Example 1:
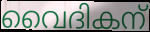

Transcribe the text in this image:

വൈദികന്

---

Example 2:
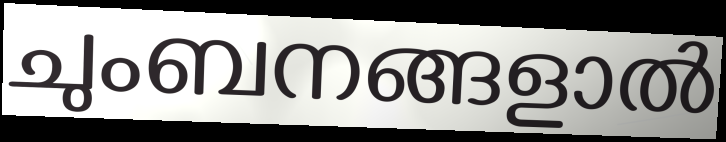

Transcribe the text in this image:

ചുംബനങ്ങളാൽ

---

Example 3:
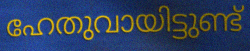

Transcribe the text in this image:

ഹേതുവായിട്ടുണ്ട്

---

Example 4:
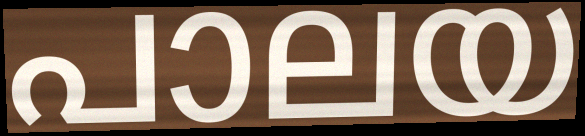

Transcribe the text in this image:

പാലയ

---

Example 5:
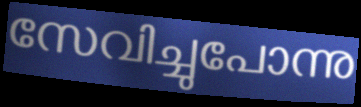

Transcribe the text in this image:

സേവിച്ചുപോന്നു